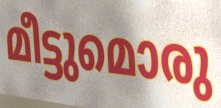
മീട്ടുമൊരു